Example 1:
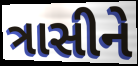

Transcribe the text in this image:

ત્રાસીને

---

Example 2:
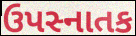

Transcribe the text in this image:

ઉપસ્નાતક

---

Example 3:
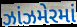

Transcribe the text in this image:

ઝાંઝમેરમાં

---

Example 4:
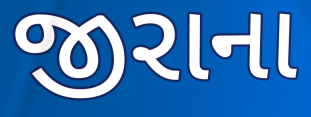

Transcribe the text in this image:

જીરાના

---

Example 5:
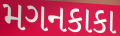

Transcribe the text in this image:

મગનકાકા